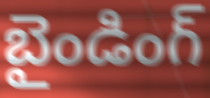
బైండింగ్